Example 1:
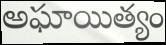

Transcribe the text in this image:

అఘాయిత్యం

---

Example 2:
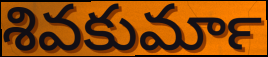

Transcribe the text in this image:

శివకుమార్‍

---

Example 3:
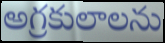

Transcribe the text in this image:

అగ్రకులాలను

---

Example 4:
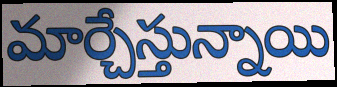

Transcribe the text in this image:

మార్చేస్తున్నాయి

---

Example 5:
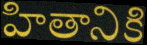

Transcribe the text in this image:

హితానికి